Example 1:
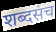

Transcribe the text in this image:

शब्दसंच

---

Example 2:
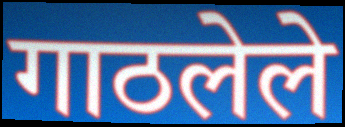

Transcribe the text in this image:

गाठलेले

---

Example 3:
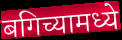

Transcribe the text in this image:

बगिच्यामध्ये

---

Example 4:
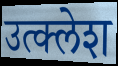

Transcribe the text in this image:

उत्क्लेश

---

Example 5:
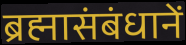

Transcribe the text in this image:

ब्रह्मासंबंधानें